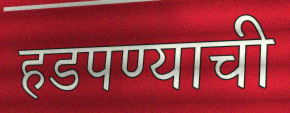
हडपण्याची